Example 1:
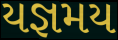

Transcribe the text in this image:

યજ્ઞમય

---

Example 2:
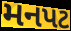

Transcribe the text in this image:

મનપટ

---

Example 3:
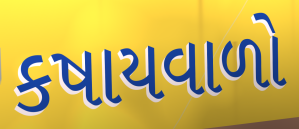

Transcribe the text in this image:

કષાયવાળો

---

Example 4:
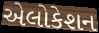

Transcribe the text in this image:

એલોકેશન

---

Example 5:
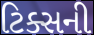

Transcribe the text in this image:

ટિક્સની